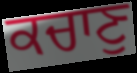
ਕਚਾਣੁ